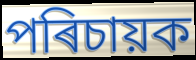
পৰিচায়ক